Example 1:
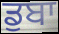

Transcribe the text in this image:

ਡੁਬਾ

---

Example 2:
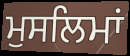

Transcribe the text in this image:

ਮੁਸਲਿਮਾਂ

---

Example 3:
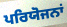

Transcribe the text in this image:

ਪਰਿਯੋਜਨਾਂ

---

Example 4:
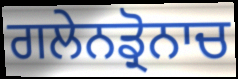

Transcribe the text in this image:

ਗਲੇਨਡ੍ਰੋਨਾਚ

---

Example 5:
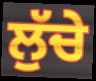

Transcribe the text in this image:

ਲੁੱਚੇ